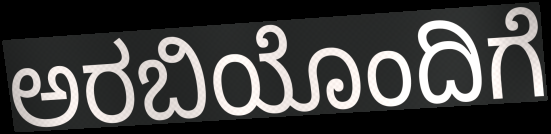
ಅರಬಿಯೊಂದಿಗೆ